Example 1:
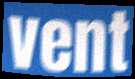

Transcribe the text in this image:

vent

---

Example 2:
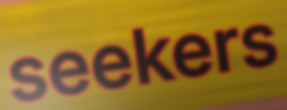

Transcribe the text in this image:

seekers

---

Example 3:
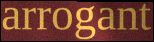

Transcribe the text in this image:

arrogant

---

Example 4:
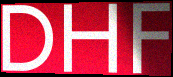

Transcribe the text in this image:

DHF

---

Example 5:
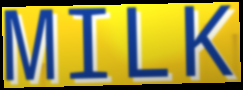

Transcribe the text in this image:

MILK